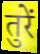
तुरें